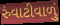
રુંવાટીવાળું